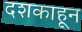
दशकाहून